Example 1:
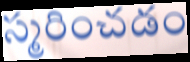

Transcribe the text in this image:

స్మరించడం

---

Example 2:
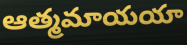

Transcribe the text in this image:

ఆత్మమాయయా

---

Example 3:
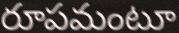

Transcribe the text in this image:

రూపమంటూ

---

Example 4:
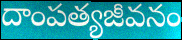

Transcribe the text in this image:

దాంపత్యజీవనం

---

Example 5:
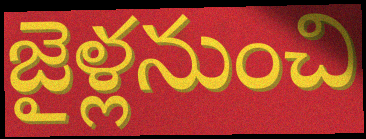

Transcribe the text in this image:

జైళ్లనుంచి